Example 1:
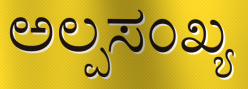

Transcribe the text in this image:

ಅಲ್ಪಸಂಖ್ಯ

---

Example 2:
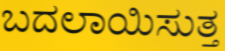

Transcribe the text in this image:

ಬದಲಾಯಿಸುತ್ತ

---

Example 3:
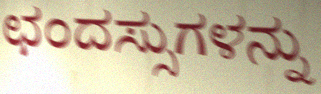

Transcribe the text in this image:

ಛಂದಸ್ಸುಗಳನ್ನು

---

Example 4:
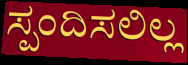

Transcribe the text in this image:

ಸ್ಪಂದಿಸಲಿಲ್ಲ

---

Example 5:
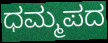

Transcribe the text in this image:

ಧಮ್ಮಪದ